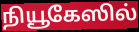
நியூகேஸில்